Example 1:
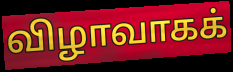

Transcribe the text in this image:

விழாவாகக்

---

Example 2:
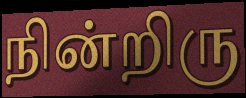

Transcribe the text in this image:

நின்றிரு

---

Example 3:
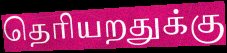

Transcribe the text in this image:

தெரியறதுக்கு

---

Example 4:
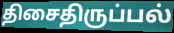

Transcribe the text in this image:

திசைதிருப்பல்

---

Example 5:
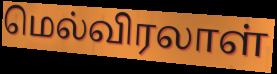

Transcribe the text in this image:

மெல்விரலாள்